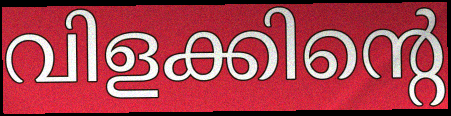
വിളക്കിന്റെ